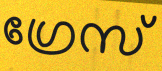
ഗ്രേസ്